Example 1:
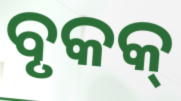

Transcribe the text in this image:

ବୃକକ୍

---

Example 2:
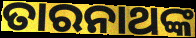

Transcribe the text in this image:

ତାରନାଥଙ୍କ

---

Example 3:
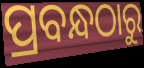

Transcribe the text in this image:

ପ୍ରବନ୍ଧଠାରୁ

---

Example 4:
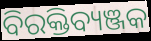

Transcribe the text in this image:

ବିରକ୍ତିବ୍ୟଞ୍ଜକ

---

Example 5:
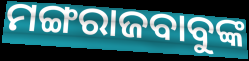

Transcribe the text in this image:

ମଙ୍ଗରାଜବାବୁଙ୍କ